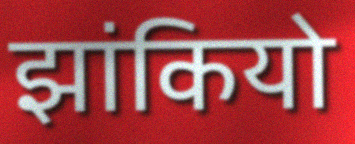
झांकियो